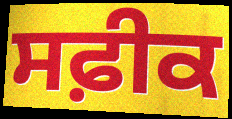
ਸਫ਼ੀਕ